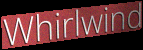
Whirlwind